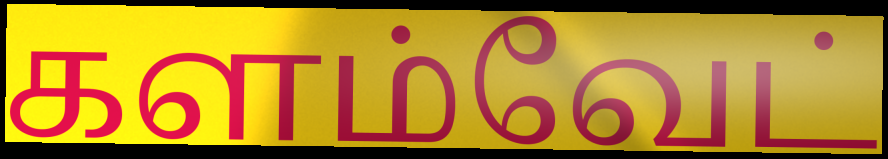
களம்வேட்